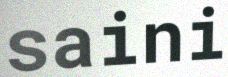
saini